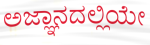
ಅಜ್ಞಾನದಲ್ಲಿಯೇ